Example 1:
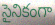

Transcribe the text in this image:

సైనికంగా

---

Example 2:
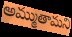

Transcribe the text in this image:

అమ్ముతామని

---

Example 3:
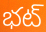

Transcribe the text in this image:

భట్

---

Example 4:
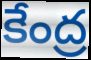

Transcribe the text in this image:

కేంద్ర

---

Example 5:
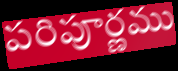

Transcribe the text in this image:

పరిపూర్ణము